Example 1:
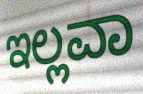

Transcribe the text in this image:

ಇಲ್ಲವಾ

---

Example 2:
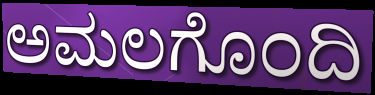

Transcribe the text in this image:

ಅಮಲಗೊಂದಿ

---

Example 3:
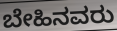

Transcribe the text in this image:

ಬೇಹಿನವರು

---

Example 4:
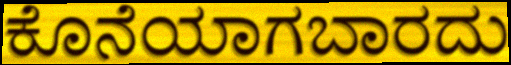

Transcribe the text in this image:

ಕೊನೆಯಾಗಬಾರದು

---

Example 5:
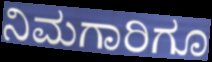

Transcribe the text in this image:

ನಿಮಗಾರಿಗೂ